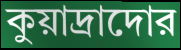
কুয়াদ্রাদোর